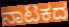
ನಾಟಕದ